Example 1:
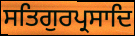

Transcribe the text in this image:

ਸਤਿਗੁਰਪ੍ਰਸਾਦਿ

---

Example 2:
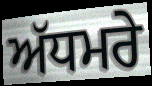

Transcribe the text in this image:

ਅੱਧਮਰੇ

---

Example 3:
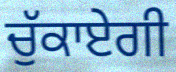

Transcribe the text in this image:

ਚੁੱਕਾਏਗੀ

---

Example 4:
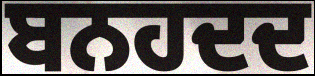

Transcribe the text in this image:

ਬਨਹਦਦ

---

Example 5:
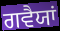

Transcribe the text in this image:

ਗਵੈਯਾਂ